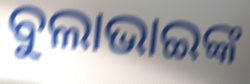
ବୁଲାଭାଇଙ୍କ